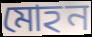
মোহন